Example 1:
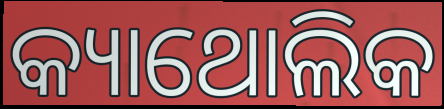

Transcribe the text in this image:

କ୍ୟାଥୋଲିକ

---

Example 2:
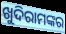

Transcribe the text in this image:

ଖୁଦିରାମଙ୍କର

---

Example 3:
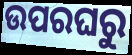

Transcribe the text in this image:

ଉପରଘରୁ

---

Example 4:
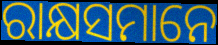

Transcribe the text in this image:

ରାକ୍ଷସମାନେ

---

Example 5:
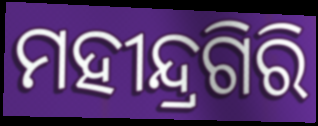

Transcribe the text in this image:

ମହୀନ୍ଦ୍ରଗିରି